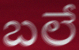
బలే